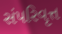
સંપરિવૃત્ત